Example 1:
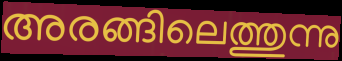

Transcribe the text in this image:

അരങ്ങിലെത്തുന്നു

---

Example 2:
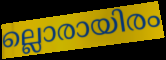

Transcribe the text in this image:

ല്ലൊരായിരം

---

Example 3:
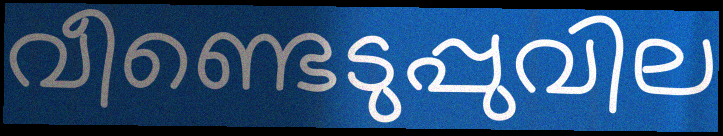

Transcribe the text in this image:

വീണ്ടെടുപ്പുവില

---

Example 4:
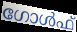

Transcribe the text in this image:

ഗോൾഫ്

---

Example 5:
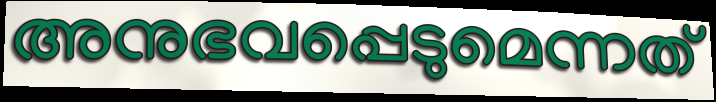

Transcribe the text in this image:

അനുഭവപ്പെടുമെന്നത്